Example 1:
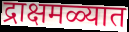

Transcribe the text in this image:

द्राक्षमळ्यात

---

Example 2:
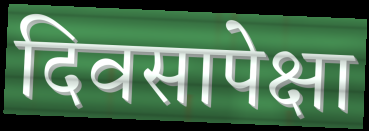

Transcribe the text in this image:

दिवसापेक्षा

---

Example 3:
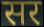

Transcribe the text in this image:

सर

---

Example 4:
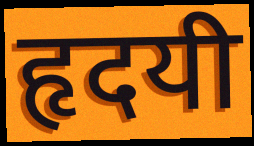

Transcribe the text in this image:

हृदयी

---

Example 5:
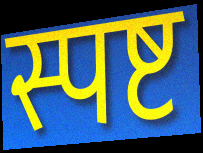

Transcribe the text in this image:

स्पष्ट